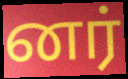
னர்